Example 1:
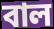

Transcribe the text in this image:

বাল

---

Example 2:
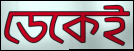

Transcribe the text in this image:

ডেকেই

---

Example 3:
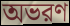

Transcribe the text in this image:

অভরণ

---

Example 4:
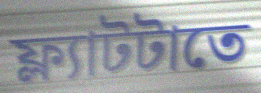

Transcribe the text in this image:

ফ্ল্যাটটাতে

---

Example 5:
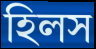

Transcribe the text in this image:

হিলস